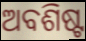
ଅବଶିଷ୍ଟ